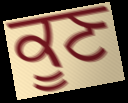
ਕੂਣ